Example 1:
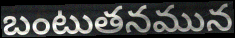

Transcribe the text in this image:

బంటుతనమున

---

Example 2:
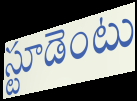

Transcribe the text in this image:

స్టూడెంటు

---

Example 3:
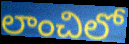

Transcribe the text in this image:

లాంచిలో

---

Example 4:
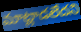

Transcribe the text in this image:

మాట్లాడలేదని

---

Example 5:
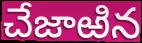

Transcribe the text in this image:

చేజాఱిన